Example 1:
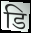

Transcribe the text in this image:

डि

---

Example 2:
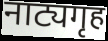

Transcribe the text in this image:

नाट्यगृह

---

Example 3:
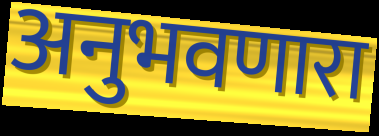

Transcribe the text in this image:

अनुभवणारा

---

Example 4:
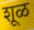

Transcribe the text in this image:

शूळ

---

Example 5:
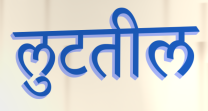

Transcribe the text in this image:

लुटतील